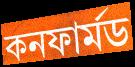
কনফার্মড